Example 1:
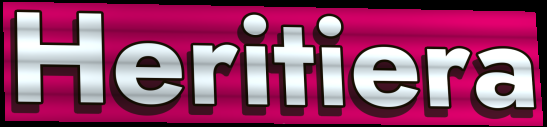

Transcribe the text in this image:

Heritiera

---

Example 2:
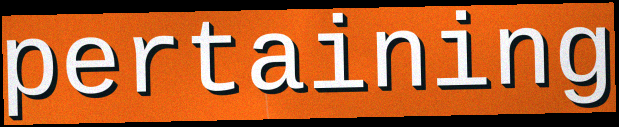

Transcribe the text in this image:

pertaining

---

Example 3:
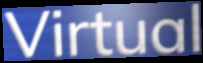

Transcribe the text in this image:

Virtual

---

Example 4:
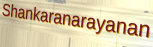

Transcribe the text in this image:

Shankaranarayanan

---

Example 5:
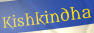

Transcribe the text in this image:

Kishkindha